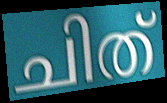
ചിത്